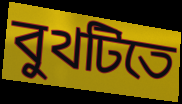
বুথটিতে